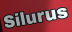
Silurus